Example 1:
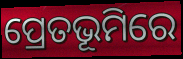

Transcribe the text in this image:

ପ୍ରେତଭୂମିରେ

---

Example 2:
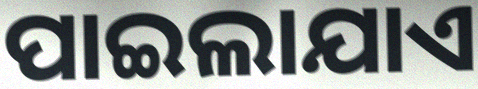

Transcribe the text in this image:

ପାଇଲାଯାଏ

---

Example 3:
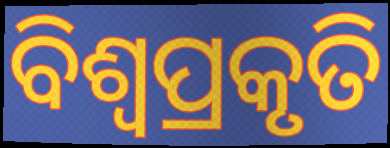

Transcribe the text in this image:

ବିଶ୍ଵପ୍ରକୃତି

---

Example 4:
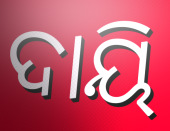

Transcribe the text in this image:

ଦାୟି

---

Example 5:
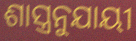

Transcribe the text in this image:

ଶାସ୍ତ୍ରନୁଯାୟୀ